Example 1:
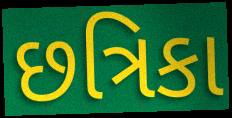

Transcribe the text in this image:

છત્રિકા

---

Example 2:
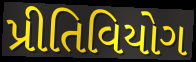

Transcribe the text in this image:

પ્રીતિવિયોગ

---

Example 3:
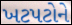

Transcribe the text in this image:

ખટપટોને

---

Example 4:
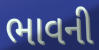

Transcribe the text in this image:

ભાવની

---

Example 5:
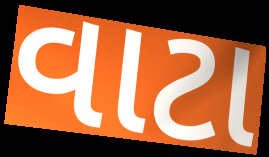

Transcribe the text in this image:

વાટા